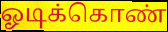
ஓடிக்கொண்